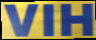
VIH